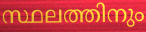
സ്ഥലത്തിനും